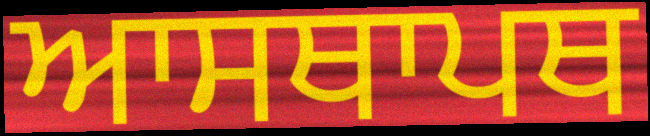
ਆਸਥਾਪਥ